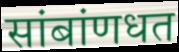
सांबांणधत